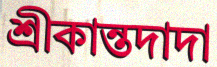
শ্রীকান্তদাদা